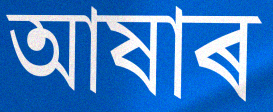
আষাৰ